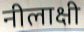
नीलाक्षी